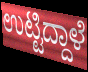
ಉಟ್ಟಿದ್ದಾಳೆ